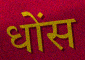
धोंस